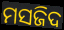
ମସଜିଦ